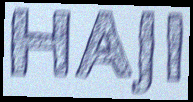
HAJI